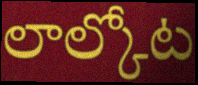
లాల్కోట